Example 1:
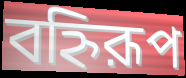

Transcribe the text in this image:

বহ্নিরূপ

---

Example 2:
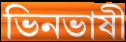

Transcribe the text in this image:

ভিনভাষী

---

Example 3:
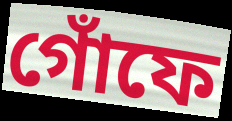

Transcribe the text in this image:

গোঁফে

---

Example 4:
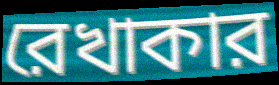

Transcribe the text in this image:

রেখাকার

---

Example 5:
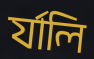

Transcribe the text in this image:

র্যালি